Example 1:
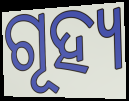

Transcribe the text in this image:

ଗୂହ୍ୟ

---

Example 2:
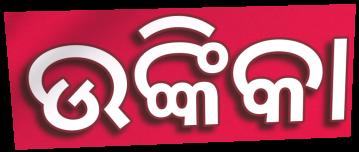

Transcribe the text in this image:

ଉଙ୍କିକା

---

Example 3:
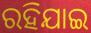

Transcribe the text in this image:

ରହିଯାଇ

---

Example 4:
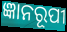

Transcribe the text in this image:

ଜ୍ଞାନରୂପୀ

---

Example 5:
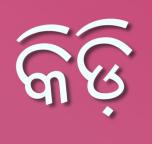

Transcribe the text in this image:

କିଡ଼ି